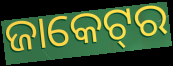
ଜାକେଟ୍‌ର